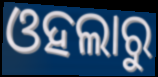
ଓହଲାରୁ